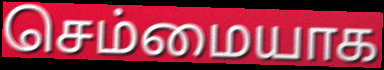
செம்மையாக